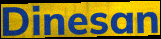
Dinesan